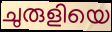
ചുരുളിയെ